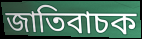
জাতিবাচক